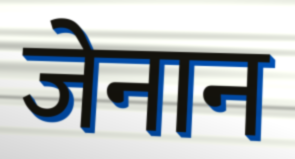
जेनान